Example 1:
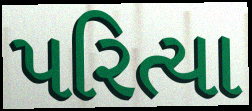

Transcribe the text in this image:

પરિત્યા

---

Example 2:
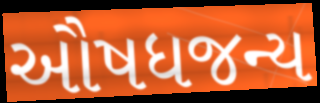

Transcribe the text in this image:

ઔષધજન્ય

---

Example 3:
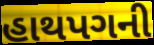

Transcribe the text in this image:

હાથપગની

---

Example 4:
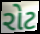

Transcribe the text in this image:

રોટ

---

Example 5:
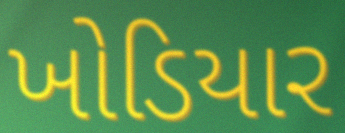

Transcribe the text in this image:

ખોડિયાર